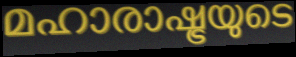
മഹാരാഷ്ട്രയുടെ